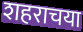
शहराचया